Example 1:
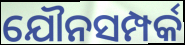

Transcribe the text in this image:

ଯୌନସମ୍ପର୍କ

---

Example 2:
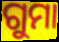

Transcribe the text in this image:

ଗୁମା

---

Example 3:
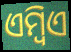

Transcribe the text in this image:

ଏମ୍ବିଏ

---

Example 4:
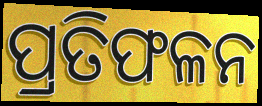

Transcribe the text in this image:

ପ୍ରତିଫଳନ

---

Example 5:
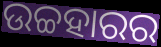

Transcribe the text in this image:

ଉଚ୍ଚହାରର